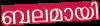
ബലമായി